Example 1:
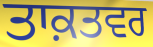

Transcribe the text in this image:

ਤਾਕ਼ਤਵਰ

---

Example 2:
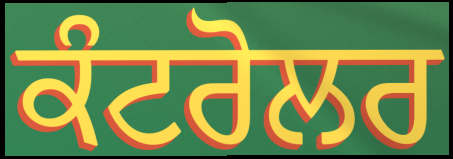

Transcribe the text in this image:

ਕੰਟਰੋਲਰ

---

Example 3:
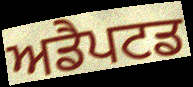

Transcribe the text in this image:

ਅਡੈਪਟਡ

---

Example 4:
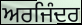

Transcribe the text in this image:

ਅਰਜਿੰਦਰ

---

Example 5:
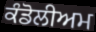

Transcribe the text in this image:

ਕੰਡੋਲੀਅਮ